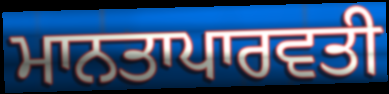
ਮਾਨਤਾਪਾਰਵਤੀ